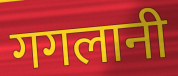
गगलानी